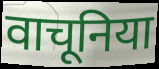
वाचूनिया